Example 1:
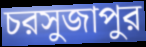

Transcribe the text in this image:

চরসুজাপুর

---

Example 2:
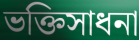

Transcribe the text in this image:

ভক্তিসাধনা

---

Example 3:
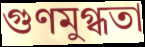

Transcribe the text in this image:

গুণমুগ্ধতা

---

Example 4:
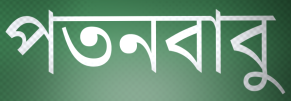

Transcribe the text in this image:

পতনবাবু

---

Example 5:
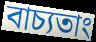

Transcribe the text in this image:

বাচ্যতাং